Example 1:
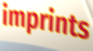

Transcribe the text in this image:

imprints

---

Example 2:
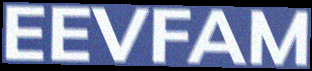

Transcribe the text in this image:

EEVFAM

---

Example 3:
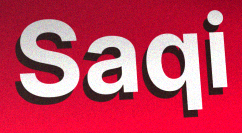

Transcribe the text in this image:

Saqi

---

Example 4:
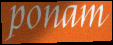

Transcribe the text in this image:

ponam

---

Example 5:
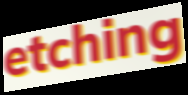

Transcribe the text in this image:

etching